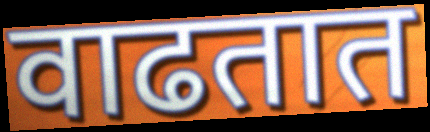
वाढतात